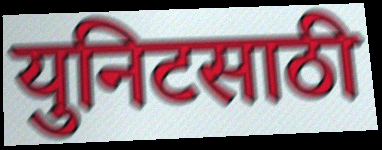
युनिटसाठी